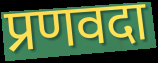
प्रणवदा